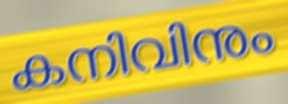
കനിവിനും